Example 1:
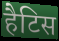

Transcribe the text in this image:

हैटिस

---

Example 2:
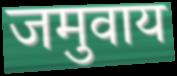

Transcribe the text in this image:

जमुवाय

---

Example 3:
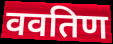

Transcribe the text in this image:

ववतिण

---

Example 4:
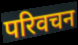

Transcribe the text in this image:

परिवचन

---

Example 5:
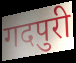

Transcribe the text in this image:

गदपुरी